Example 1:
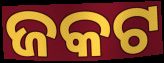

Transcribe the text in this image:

ଜକଟ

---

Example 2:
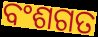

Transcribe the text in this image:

ବଂଶଗତ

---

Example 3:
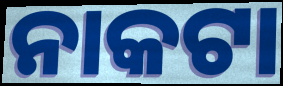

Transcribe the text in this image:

ନାକଟା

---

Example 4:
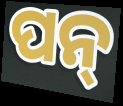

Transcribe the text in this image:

ପନ୍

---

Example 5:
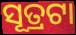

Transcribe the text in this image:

ସୂତ୍ରଟା